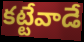
కట్టేవాడే